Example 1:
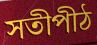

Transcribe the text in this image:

সতীপীঠ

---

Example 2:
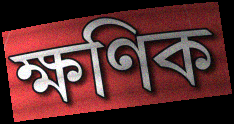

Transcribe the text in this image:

ক্ষণিক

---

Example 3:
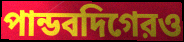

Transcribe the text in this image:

পান্ডবদিগেরও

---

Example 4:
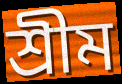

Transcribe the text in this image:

শ্রীম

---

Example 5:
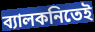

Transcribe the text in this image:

ব্যালকনিতেই